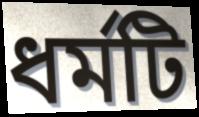
ধর্মটি